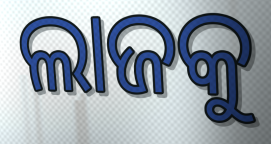
ଲାଜକୁ